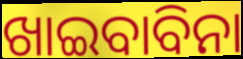
ଖାଇବାବିନା